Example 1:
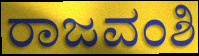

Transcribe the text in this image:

ರಾಜವಂಶಿ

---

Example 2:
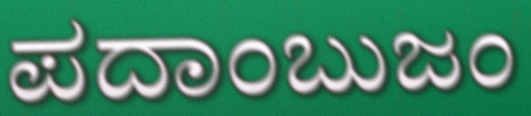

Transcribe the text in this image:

ಪದಾಂಬುಜಂ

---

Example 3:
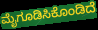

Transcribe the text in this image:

ಮೈಗೂಡಿಸಿಕೊಂಡಿದೆ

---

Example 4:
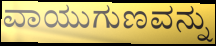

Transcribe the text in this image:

ವಾಯುಗುಣವನ್ನು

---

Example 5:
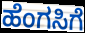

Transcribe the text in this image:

ಹೆಂಗಸಿಗೆ